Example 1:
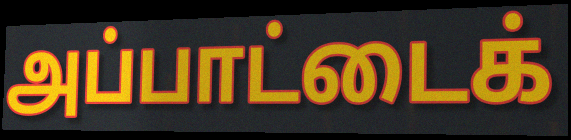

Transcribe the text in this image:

அப்பாட்டைக்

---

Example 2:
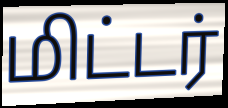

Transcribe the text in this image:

மிட்டர்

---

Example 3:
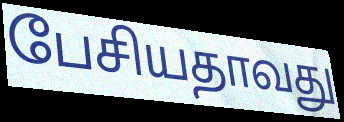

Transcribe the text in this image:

பேசியதாவது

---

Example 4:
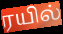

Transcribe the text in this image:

ரயில்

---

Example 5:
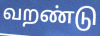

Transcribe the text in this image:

வறண்டு